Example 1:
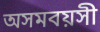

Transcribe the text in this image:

অসমবয়সী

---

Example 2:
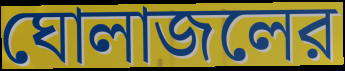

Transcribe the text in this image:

ঘোলাজলের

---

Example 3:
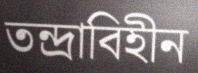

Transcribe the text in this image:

তন্দ্রাবিহীন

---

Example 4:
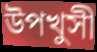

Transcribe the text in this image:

উপখুসী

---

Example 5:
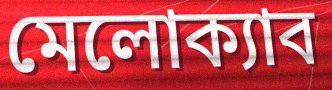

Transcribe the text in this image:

মেলোক্যাব